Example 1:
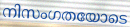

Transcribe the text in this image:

നിസംഗതയോടെ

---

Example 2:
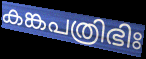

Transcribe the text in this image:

കങ്കപത്രിഭിഃ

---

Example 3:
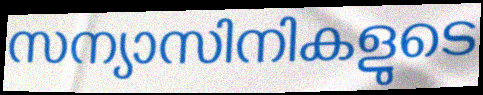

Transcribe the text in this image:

സന്യാസിനികളുടെ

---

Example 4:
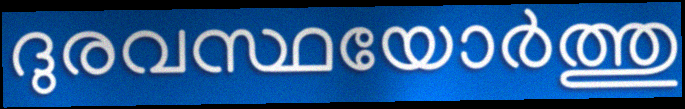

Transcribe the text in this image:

ദുരവസ്ഥയോർത്തു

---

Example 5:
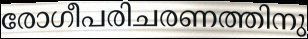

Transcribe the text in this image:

രോഗീപരിചരണത്തിനു